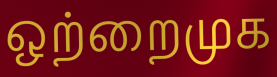
ஒற்றைமுக